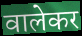
वालेकर